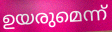
ഉയരുമെന്ന്